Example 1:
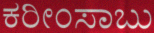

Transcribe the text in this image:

ಕರೀಂಸಾಬು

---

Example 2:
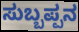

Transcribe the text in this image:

ಸುಬ್ಬಪ್ಪನ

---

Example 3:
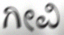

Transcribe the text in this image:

ಗೀವಿ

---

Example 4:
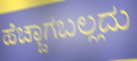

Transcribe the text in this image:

ಹೆಚ್ಚಾಗಬಲ್ಲದು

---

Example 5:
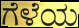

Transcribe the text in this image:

ಗೆಳೆಯ